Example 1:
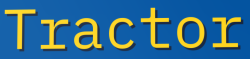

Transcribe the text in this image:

Tractor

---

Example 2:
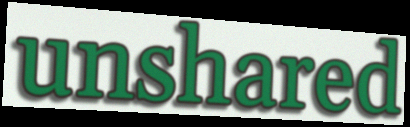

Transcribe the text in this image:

unshared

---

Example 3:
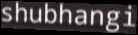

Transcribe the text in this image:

shubhangi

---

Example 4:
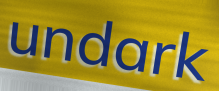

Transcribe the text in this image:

undark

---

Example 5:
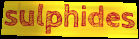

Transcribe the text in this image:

sulphides